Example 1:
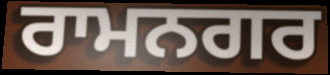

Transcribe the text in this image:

ਰਾਮਨਗਰ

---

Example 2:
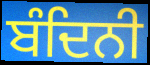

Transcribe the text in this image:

ਬੰਦਿਨੀ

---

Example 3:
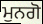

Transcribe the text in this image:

ਮੁਨਗੋ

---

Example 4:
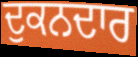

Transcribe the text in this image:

ਦੁਕਨਦਾਰ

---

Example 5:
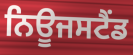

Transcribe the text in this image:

ਨਿਊਜਸਟੈਂਡ